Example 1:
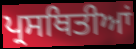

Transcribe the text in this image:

ਪ੍ਰਸਥਿਤੀਆਂ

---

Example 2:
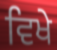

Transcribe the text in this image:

ਵਿਖੇ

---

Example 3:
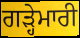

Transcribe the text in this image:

ਗੜ੍ਹੇਮਾਰੀ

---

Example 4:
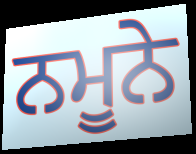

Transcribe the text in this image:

ਨਮੂਨੇ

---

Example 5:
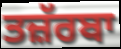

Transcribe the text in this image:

ਤਜ਼ੱਰਬਾ